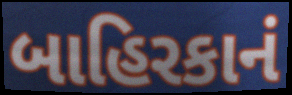
બાહિરકાનં